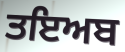
ਤਇਅਬ